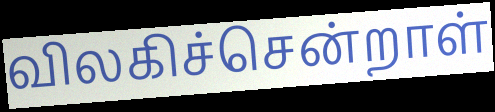
விலகிச்சென்றாள்